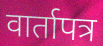
वार्तापत्र